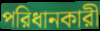
পরিধানকারী